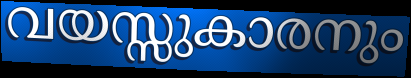
വയസ്സുകാരനും